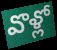
వొళ్లో